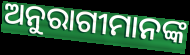
ଅନୁରାଗୀମାନଙ୍କ